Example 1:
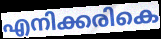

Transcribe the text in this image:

എനിക്കരികെ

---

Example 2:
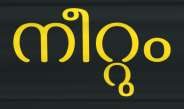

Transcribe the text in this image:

നീറ്റും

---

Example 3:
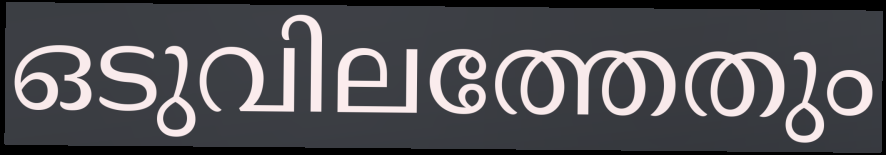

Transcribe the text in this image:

ഒടുവിലത്തേതും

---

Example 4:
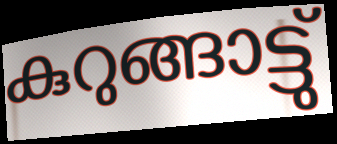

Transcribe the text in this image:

കുറുങ്ങാട്ടു്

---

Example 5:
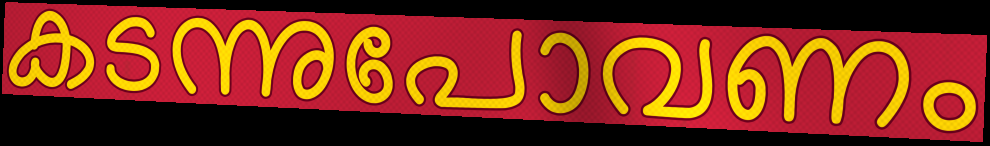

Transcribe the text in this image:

കടന്നുപോവണം